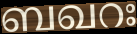
ബഖറഃ